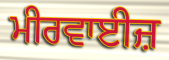
ਮੀਰਵਾਈਜ਼